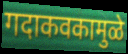
गदाकवकामुळे